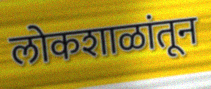
लोकशाळांतून